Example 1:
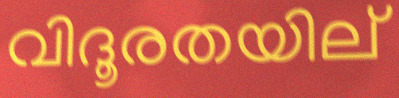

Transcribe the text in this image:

വിദൂരതയില്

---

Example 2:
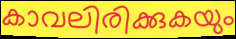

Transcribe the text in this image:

കാവലിരിക്കുകയും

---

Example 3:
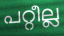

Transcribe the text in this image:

പറ്റീല്ല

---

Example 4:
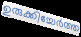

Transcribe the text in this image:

ഉരുക്കിച്ചേർത്ത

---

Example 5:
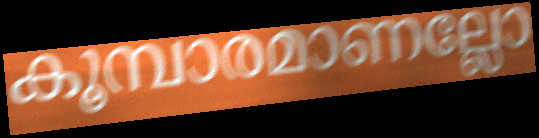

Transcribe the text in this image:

കൂമ്പാരമാണല്ലോ